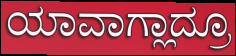
ಯಾವಾಗ್ಲಾದ್ರೂ